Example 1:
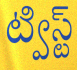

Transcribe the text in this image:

ట్విస్ట్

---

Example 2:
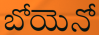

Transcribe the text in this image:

బోయెనో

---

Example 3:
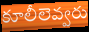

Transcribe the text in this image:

కూలీలెవ్వరు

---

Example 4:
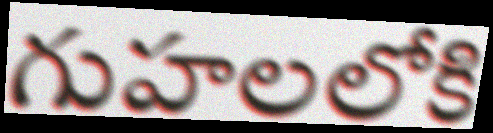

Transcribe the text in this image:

గుహలలోకి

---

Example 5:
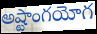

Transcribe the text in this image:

అష్టాంగయోగ